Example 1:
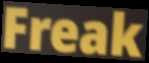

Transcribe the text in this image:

Freak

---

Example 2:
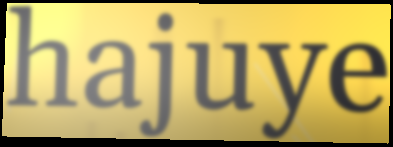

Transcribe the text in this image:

hajuye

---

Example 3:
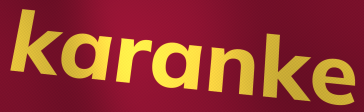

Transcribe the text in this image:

karanke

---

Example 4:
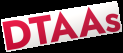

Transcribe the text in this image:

DTAAs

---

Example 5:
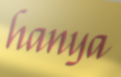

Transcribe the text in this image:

hanya